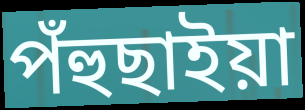
পঁহুছাইয়া